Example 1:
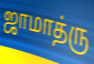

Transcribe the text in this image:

ஜாமாத்ரு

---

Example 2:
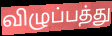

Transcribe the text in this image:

விழுப்பத்து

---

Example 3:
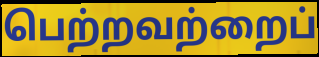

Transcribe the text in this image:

பெற்றவற்றைப்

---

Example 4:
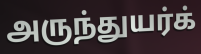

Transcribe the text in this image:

அருந்துயர்க்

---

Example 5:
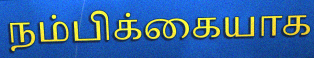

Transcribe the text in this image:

நம்பிக்கையாக